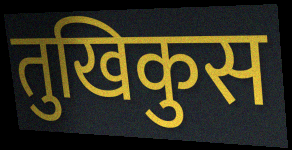
तुखिकुस